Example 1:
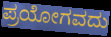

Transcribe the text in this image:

ಪ್ರಯೋಗವದು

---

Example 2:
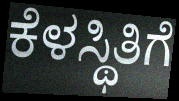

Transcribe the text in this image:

ಕೆಳಸ್ಥಿತಿಗೆ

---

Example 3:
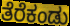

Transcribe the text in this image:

ತೆರೆಕಂಡು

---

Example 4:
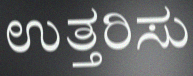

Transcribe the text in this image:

ಉತ್ತರಿಸು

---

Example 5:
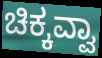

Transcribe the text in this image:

ಚಿಕ್ಕವ್ವಾ